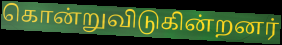
கொன்றுவிடுகின்றனர்